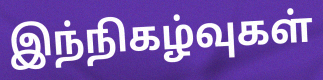
இந்நிகழ்வுகள்